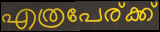
എത്രപേര്ക്ക്